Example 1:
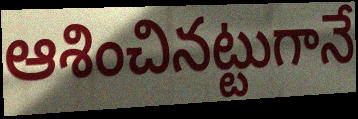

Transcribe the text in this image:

ఆశించినట్టుగానే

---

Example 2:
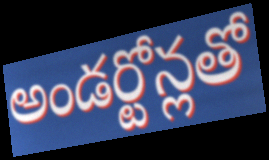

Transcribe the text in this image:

అండర్టోన్లతో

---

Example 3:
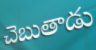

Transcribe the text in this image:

చెబుతాడు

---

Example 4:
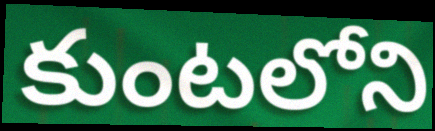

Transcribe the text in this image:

కుంటలోని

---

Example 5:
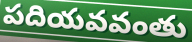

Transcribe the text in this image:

పదియవవంతు